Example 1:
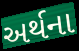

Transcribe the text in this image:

અર્થના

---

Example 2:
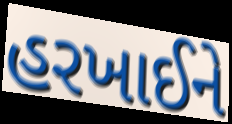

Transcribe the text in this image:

હરખાઈને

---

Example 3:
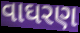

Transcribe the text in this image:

વાઘરણ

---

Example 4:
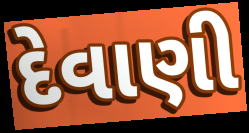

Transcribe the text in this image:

દેવાણી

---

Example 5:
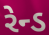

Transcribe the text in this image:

રેન્ડ